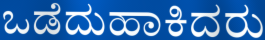
ಒಡೆದುಹಾಕಿದರು